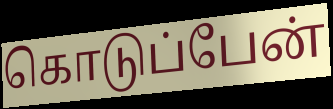
கொடுப்பேன்